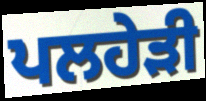
ਪਲਹੇੜੀ